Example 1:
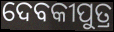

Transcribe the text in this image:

ଦେବକୀପୁତ୍ର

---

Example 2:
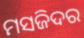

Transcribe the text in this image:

ମସଜିଦର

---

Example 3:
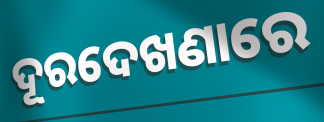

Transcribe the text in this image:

ଦୂରଦେଖଣାରେ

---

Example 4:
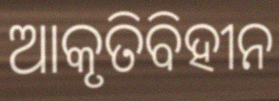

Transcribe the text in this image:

ଆକୃତିବିହୀନ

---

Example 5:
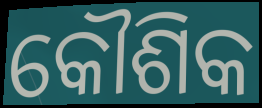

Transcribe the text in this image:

କୌଶିକ